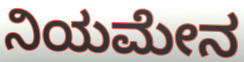
ನಿಯಮೇನ